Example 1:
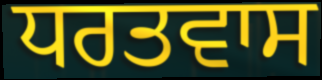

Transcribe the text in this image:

ਧਰਤਵਾਸ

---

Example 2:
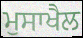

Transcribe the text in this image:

ਮੁਸਾਖੈਲ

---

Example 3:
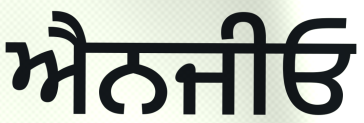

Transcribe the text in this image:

ਐਨਜੀਓ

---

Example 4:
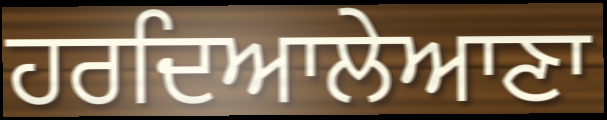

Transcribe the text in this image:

ਹਰਦਿਆਲੇਆਣਾ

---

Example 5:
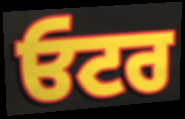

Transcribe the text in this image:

ਓਟਰ